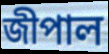
জীপাল